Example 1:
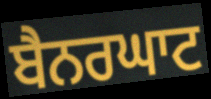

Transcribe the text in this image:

ਬੈਨਰਘਾਟ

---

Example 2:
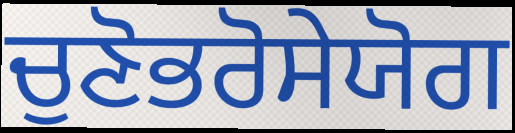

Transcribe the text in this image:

ਚੁਣੋਭਰੋਸੇਯੋਗ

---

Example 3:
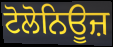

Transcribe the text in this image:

ਟੋਲੋਨਿਊਜ਼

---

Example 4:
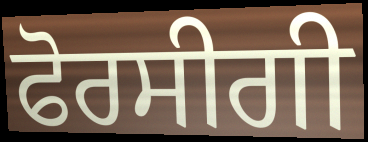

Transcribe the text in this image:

ਫੋਰਸੀਗੀ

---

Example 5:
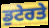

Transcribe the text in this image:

ਡੁਟੇਰਤੇ